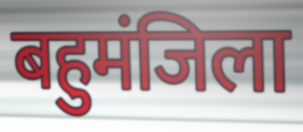
बहुमंजिला